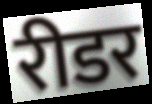
रीडर